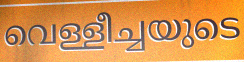
വെള്ളീച്ചയുടെ